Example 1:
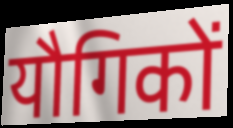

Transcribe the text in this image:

यौगिकों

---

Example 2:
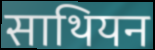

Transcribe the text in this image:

साथियन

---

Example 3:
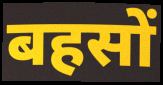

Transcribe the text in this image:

बहसों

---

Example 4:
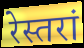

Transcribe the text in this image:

रेस्तरां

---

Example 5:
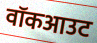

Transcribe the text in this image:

वॉकआउट